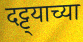
दट्ट्याच्या